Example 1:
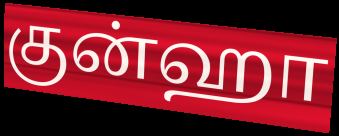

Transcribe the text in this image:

குன்ஹா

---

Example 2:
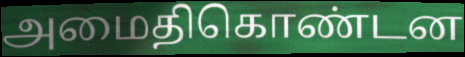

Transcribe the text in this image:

அமைதிகொண்டன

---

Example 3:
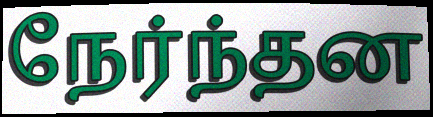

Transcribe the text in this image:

நேர்ந்தன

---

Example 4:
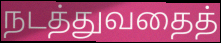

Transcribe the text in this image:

நடத்துவதைத்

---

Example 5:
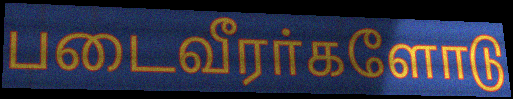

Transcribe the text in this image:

படைவீரர்களோடு